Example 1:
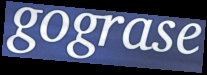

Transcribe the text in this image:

gograse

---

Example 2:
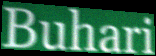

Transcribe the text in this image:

Buhari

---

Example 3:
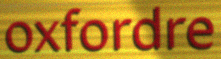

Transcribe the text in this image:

oxfordre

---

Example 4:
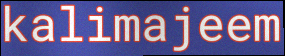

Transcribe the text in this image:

kalimajeem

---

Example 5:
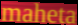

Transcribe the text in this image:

maheta